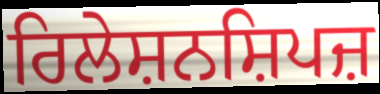
ਰਿਲੇਸ਼ਨਸ਼ਿਪਜ਼